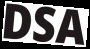
DSA